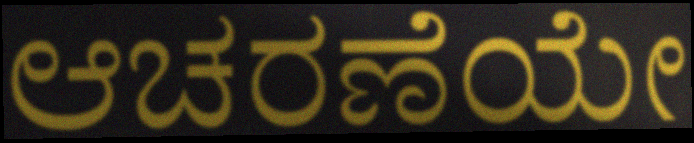
ಆಚರಣೆಯೇ